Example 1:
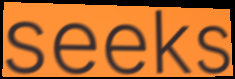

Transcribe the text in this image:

seeks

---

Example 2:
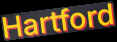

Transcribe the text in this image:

Hartford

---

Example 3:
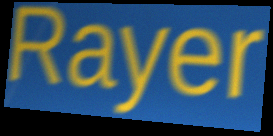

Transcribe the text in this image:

Rayer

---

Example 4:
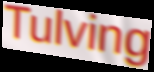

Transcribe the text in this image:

Tulving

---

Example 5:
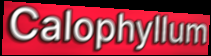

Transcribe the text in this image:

Calophyllum